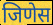
जिणेस